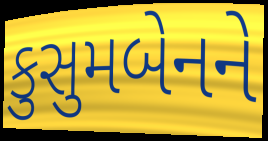
કુસુમબેનને